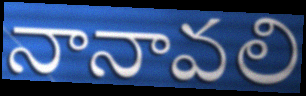
నానావలి